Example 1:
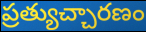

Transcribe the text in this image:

ప్రత్యుచ్చారణం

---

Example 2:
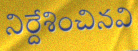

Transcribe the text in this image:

నిర్దేశించినవి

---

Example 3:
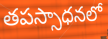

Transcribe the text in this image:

తపస్సాధనలో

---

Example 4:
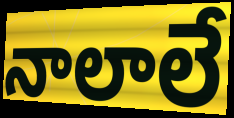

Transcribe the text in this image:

నాలాలే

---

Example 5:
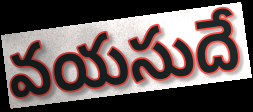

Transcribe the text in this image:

వయసుదే